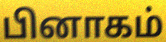
பினாகம்